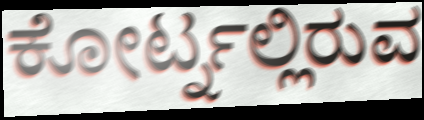
ಕೋರ್ಟ್ನಲ್ಲಿರುವ